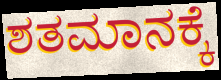
ಶತಮಾನಕ್ಕೆ